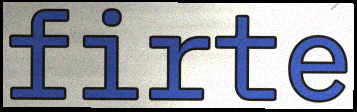
firte